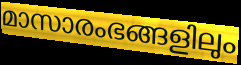
മാസാരംഭങ്ങളിലും